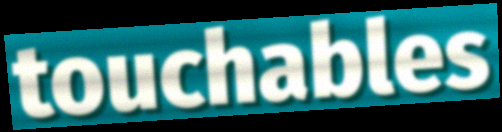
touchables